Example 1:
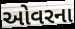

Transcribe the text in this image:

ઓવરના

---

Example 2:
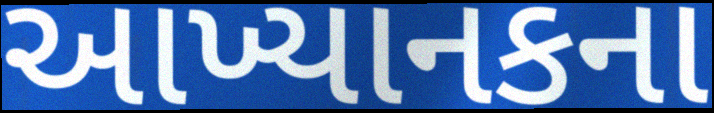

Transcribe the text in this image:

આખ્યાનકના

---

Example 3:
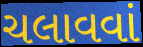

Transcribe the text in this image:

ચલાવવાં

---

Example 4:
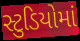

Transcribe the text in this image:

સ્ટુડિયોમાં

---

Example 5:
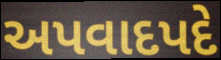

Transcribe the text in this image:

અપવાદપદે